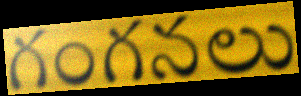
గంగనలు